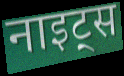
नाइट्‌स